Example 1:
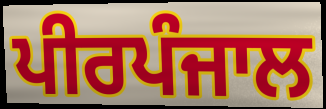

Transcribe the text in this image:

ਪੀਰਪੰਜਾਲ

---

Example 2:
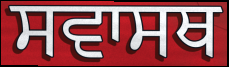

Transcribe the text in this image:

ਸਵਾਸਥ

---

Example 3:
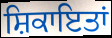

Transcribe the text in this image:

ਸ਼ਿਕਾਇਤਾਂ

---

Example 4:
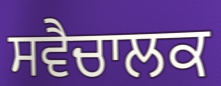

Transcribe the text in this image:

ਸਵੈਚਾਲਕ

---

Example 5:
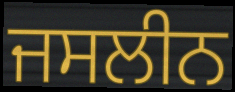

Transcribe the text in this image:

ਜਸਲੀਨ